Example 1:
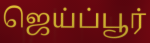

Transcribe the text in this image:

ஜெய்ப்பூர்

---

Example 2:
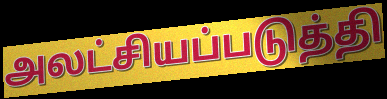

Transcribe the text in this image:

அலட்சியப்படுத்தி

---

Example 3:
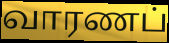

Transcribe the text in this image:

வாரணப்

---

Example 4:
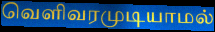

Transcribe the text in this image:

வெளிவரமுடியாமல்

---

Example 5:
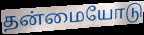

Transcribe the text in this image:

தன்மையோடு